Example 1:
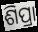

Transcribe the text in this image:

ଶିପ୍ରା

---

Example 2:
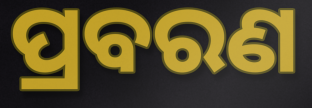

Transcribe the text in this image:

ପ୍ରବରଣ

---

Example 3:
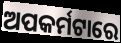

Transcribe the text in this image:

ଅପକର୍ମଟାରେ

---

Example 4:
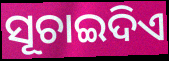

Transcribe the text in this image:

ସୂଚାଇଦିଏ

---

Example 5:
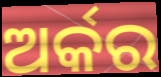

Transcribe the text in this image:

ଅର୍କର